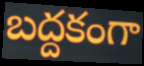
బద్దకంగా